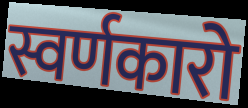
स्वर्णकारो